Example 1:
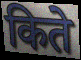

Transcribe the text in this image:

किते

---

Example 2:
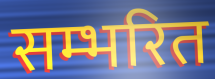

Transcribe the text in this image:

सम्भरित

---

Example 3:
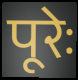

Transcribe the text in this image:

पूरेः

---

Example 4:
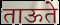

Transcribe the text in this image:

ताऊते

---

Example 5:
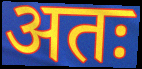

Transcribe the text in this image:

अतः